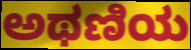
ಅಥಣಿಯ